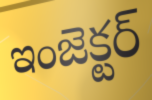
ఇంజెక్టర్